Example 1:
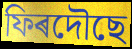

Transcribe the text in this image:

ফিৰদৌছে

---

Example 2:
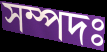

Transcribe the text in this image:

সম্পদঃ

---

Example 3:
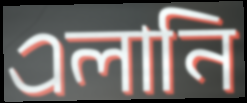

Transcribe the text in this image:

এলানি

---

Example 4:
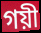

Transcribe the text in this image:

গয়ী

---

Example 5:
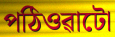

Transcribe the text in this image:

পঠিওৱাটো